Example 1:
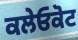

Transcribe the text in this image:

ਕਲੇਓਕੋਟ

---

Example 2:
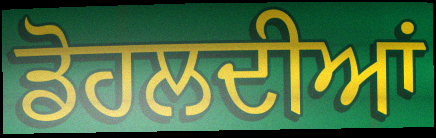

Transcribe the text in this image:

ਡੋਹਲਦੀਆਂ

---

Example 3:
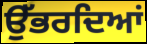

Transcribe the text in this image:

ਉੱਭਰਦਿਆਂ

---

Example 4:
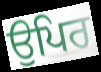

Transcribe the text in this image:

ਉਪਿਰ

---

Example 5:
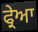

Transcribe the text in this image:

ਫ੍ਰੇਆ